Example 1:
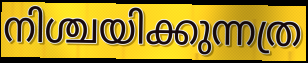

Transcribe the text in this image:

നിശ്ചയിക്കുന്നത്ര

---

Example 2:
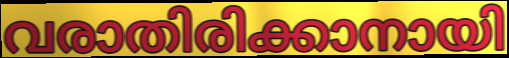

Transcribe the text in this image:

വരാതിരിക്കാനായി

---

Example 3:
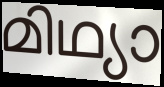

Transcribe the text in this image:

മിഥ്യാ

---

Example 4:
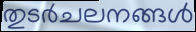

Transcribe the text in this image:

തുടർചലനങ്ങൾ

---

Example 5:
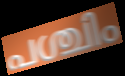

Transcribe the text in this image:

പശ്ചിം